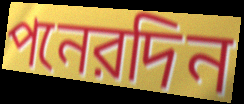
পনেরদিন